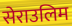
सेराउलिम